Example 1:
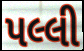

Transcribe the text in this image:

પલ્લી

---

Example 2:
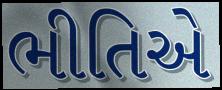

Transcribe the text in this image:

ભીતિએ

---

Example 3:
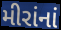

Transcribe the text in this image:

મીરાંનાં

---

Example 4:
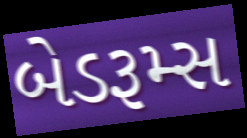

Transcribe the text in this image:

બેડરૂમ્સ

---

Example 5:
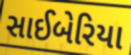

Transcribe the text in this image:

સાઈબેરિયા